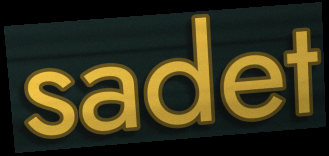
sadet